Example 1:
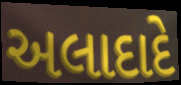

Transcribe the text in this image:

અલાદાદે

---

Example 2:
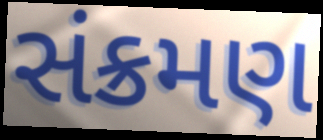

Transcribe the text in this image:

સંક્રમણ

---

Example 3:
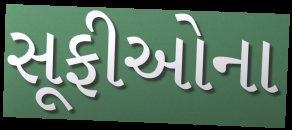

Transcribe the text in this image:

સૂફીઓના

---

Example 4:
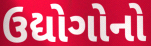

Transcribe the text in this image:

ઉદ્યોગોનો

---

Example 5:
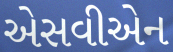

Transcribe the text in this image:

એસવીએન